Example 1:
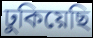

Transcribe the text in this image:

ঢুকিয়েছি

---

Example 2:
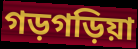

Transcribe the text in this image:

গড়গড়িয়া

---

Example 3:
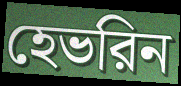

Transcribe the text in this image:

হেভরিন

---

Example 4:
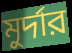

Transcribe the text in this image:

মুর্দার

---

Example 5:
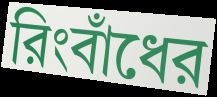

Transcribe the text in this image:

রিংবাঁধের